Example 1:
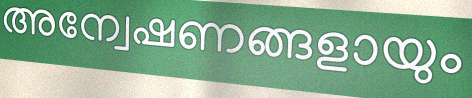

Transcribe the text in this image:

അന്വേഷണങ്ങളായും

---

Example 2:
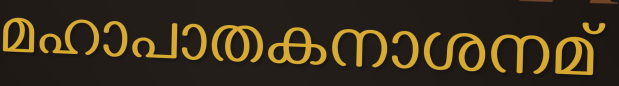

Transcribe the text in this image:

മഹാപാതകനാശനമ്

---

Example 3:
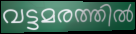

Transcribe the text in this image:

വട്ടമരത്തിൽ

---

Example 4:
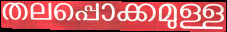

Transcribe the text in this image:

തലപ്പൊക്കമുള്ള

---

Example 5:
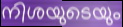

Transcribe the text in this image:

നിശയുടെയും